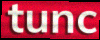
tunc